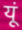
यूं